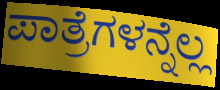
ಪಾತ್ರೆಗಳನ್ನೆಲ್ಲ